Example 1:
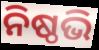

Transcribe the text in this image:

ନିଷ୍ଠଭି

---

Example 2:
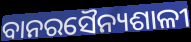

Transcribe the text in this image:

ବାନରସୈନ୍ୟଶାଳୀ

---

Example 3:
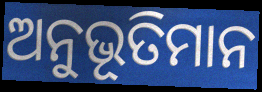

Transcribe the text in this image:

ଅନୁଭୂତିମାନ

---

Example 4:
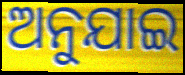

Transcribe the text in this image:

ଅନୁଯାଇ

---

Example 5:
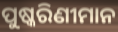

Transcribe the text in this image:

ପୁଷ୍କରିଣୀମାନ